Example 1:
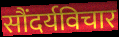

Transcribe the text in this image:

सौंदर्यविचार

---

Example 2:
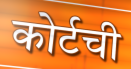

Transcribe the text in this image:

कोर्टची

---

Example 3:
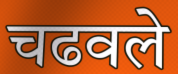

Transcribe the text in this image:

चढवले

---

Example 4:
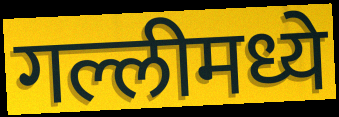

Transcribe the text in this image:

गल्लीमध्ये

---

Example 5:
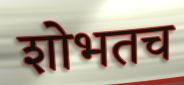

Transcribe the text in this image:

शोभतच